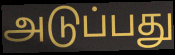
அடுப்பது